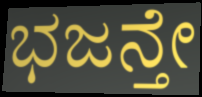
ಭಜನ್ತೇ